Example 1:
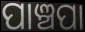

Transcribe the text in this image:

ପାଞ୍ଚପା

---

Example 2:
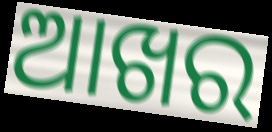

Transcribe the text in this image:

ଆଖର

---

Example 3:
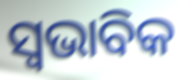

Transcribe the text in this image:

ସ୍ୱଭାବିକ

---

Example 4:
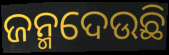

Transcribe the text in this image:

ଜନ୍ମଦେଉଛି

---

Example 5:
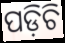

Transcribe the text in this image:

ପଡ଼ିଚି